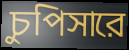
চুপিসারে